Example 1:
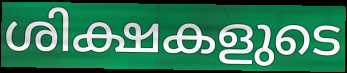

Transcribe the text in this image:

ശിക്ഷകളുടെ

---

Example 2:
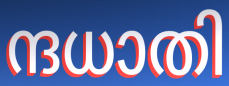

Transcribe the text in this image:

ന്ദധാതി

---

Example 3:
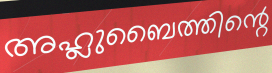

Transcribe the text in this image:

അഹ്ലുബൈത്തിന്റെ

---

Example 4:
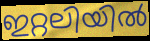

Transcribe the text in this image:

ഇറ്റലിയിൽ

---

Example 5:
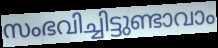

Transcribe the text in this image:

സംഭവിച്ചിട്ടുണ്ടാവാം